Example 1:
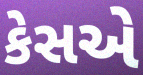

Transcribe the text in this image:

કેસએ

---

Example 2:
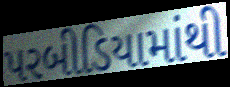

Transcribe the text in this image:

પરબીડિયામાંથી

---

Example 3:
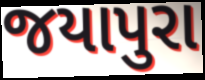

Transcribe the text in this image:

જયાપુરા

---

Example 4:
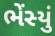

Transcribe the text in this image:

ભેંસ્યું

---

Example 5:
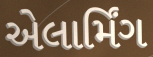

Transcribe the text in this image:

એલાર્મિંગ